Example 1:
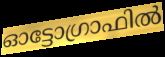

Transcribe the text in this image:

ഓട്ടോഗ്രാഫിൽ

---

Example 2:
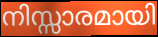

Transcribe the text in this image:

നിസ്സാരമായി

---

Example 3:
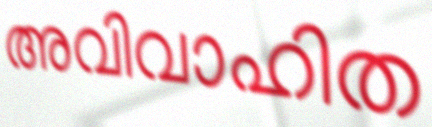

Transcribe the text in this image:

അവിവാഹിത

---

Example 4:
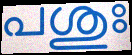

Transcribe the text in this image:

പശുഃ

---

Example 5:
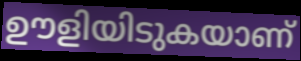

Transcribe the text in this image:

ഊളിയിടുകയാണ്